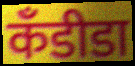
कॅंडीडा